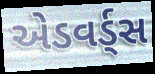
એડવર્ડ્સ